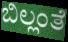
ಬಿಲ್ಲಂತೆ